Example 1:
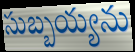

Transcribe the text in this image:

సుబ్బయ్యను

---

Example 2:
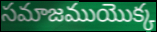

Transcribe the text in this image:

సమాజముయొక్క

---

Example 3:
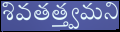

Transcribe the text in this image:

శివతత్త్వమని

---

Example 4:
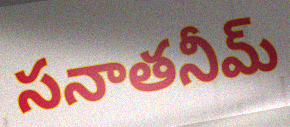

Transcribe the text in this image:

సనాతనీమ్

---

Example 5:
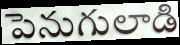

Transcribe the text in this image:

పెనుగులాడి